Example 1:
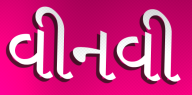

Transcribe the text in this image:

વીનવી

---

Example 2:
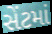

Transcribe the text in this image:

સેંટમાં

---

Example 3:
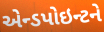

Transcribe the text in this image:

એન્ડપોઇન્ટને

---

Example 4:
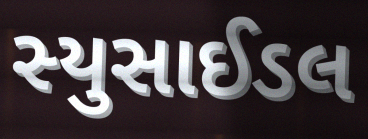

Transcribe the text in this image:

સ્યુસાઈડલ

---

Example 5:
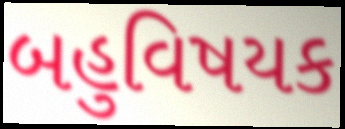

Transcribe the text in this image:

બહુવિષયક